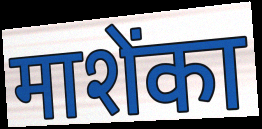
माशेंका